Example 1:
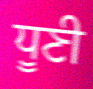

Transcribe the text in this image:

ਧੂਣੀ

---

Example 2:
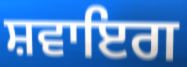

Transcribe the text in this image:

ਸ਼ਵਾਇਗ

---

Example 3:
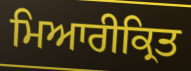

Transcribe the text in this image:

ਮਿਆਰੀਕ੍ਰਿਤ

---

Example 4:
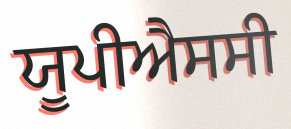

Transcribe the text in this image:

ਯੂਪੀਐਸਸੀ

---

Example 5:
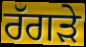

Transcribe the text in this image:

ਰੱਗੜੇ